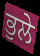
ਭੁਲੇ